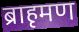
ब्राहृमण